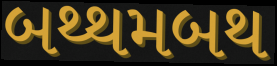
બથ્થમબથ